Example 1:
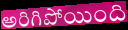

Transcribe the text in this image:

అరిగిపోయింది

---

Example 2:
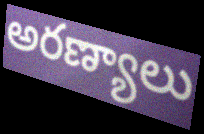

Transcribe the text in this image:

అరణ్యాలు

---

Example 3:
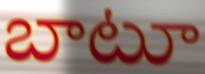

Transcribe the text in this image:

బాటూ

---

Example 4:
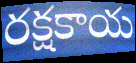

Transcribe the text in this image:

రక్షకాయ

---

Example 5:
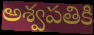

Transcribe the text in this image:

అశ్వపతికి